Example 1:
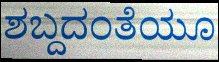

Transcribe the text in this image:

ಶಬ್ದದಂತೆಯೂ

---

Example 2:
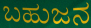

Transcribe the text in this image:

ಬಹುಜನ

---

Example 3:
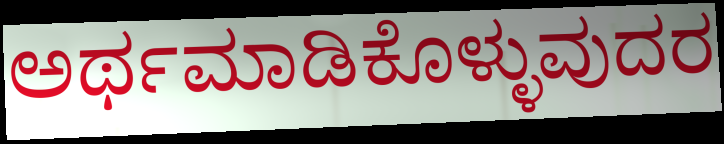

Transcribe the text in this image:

ಅರ್ಥಮಾಡಿಕೊಳ್ಳುವುದರ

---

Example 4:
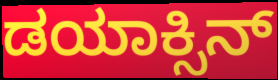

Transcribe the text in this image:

ಡಯಾಕ್ಸಿನ್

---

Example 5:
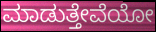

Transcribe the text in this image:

ಮಾಡುತ್ತೇವೆಯೋ